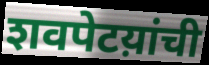
शवपेटय़ांची